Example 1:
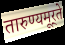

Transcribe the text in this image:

तारुण्यमूर्ते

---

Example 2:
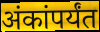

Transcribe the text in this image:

अंकांपर्यंत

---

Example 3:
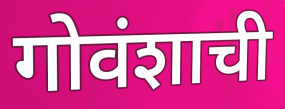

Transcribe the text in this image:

गोवंशाची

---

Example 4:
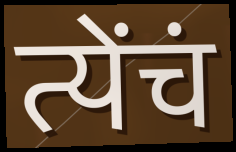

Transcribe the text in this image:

त्येंचं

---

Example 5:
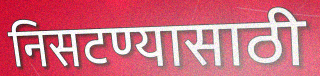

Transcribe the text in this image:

निसटण्यासाठी